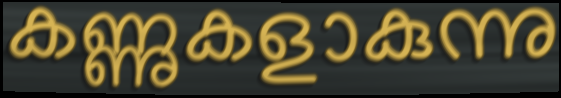
കണ്ണുകളാകുന്നു